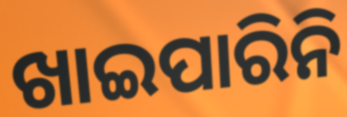
ଖାଇପାରିନି